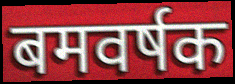
बमवर्षक